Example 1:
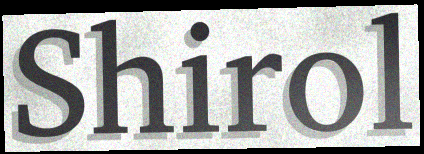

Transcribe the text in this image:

Shirol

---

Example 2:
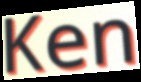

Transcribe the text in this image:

Ken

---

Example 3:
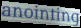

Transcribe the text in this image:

anointing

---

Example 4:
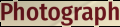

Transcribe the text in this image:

Photograph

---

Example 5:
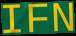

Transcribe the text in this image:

IFN